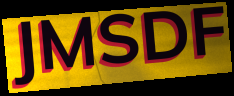
JMSDF